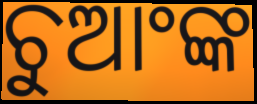
ଚୁଆଂଙ୍କ